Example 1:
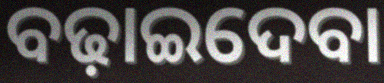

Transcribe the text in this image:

ବଢ଼ାଇଦେବା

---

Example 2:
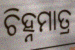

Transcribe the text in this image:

ଚିହ୍ନମାତ୍ର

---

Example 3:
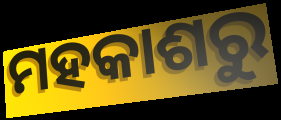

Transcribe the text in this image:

ମହକାଶରୁ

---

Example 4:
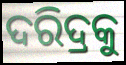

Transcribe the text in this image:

ଦରିଦ୍ରକୁ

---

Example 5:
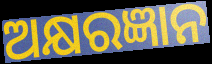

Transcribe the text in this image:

ଅକ୍ଷରଜ୍ଞାନ